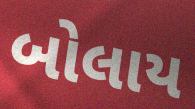
બોલાય